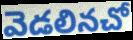
వెడలినచో